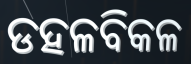
ଡହଳବିକଳ